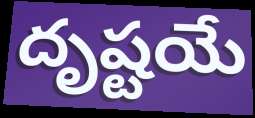
దృష్టయే